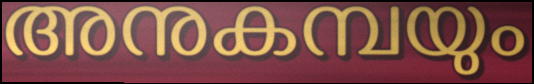
അനുകമ്പയും